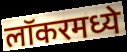
लॉकरमध्ये